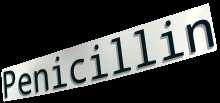
Penicillin